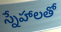
స్నేహాలతో